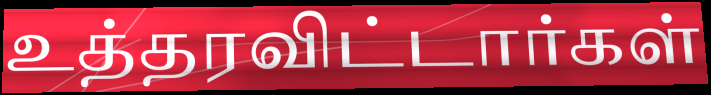
உத்தரவிட்டார்கள்